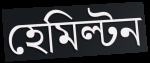
হেমিল্টন